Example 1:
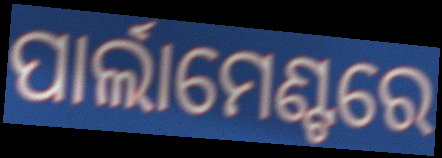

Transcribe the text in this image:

ପାର୍ଲାମେଣ୍ଟରେ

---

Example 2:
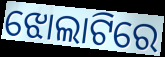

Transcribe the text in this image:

ଝୋଲାଟିରେ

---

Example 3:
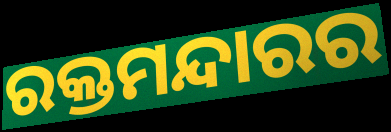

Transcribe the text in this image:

ରକ୍ତମନ୍ଦାରର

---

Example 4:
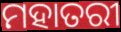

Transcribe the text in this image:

ମହାତରୀ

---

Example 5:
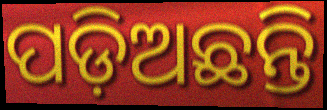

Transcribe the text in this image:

ପଡ଼ିଅଛନ୍ତି